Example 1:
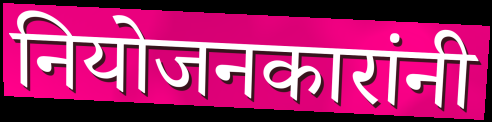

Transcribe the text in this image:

नियोजनकारांनी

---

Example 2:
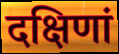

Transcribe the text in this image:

दक्षिणां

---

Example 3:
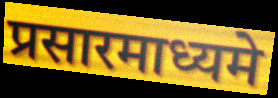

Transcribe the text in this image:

प्रसारमाध्यमे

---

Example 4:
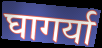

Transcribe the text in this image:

घागर्या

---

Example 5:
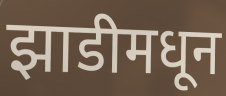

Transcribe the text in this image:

झाडीमधून